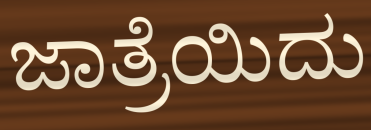
ಜಾತ್ರೆಯಿದು